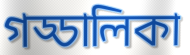
গড্ডালিকা